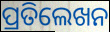
ପ୍ରତିଲେଖନ